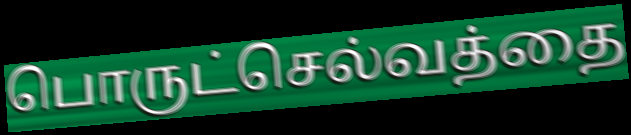
பொருட்செல்வத்தை